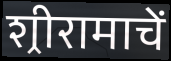
श्रीरामाचें